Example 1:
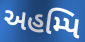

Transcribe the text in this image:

અહમ્પિ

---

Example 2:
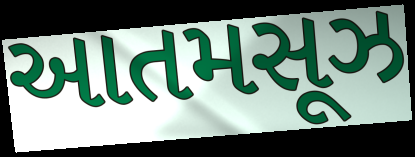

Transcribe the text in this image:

આતમસૂઝ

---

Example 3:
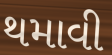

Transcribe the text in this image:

થમાવી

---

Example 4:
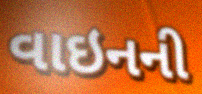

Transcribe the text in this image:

વાઇનની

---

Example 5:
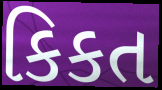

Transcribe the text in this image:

કિકત